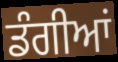
ਡੰਗੀਆਂ